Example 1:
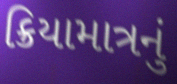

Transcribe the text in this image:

ક્રિયામાત્રનું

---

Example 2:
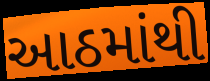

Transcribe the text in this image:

આઠમાંથી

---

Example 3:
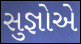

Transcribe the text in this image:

સુજ્ઞોએ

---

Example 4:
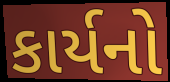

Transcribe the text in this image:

કાર્યનો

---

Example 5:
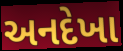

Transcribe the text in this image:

અનદેખા